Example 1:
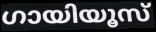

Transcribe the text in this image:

ഗായിയൂസ്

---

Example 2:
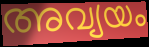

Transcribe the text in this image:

അവ്യയം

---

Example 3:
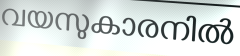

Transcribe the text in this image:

വയസുകാരനിൽ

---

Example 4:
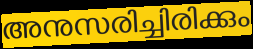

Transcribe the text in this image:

അനുസരിച്ചിരിക്കും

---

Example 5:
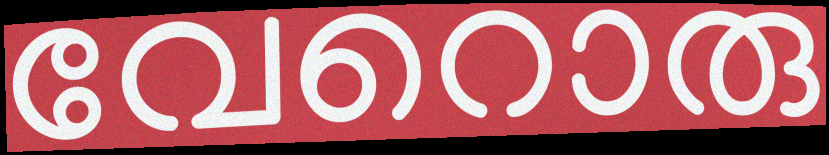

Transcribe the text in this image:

വേറൊരു